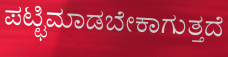
ಪಟ್ಟಿಮಾಡಬೇಕಾಗುತ್ತದೆ